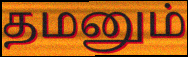
தமனும்